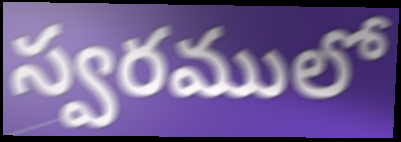
స్వరములో